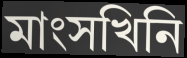
মাংসখিনি